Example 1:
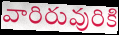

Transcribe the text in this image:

వారిరువురికి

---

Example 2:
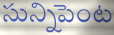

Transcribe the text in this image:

సున్నిపెంట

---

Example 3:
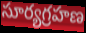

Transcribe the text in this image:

సూర్యగ్రహణ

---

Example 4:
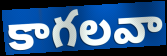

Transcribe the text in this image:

కాగలవా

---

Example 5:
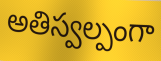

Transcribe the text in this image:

అతిస్వల్పంగా